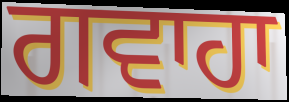
ਗਵਾਹਾ